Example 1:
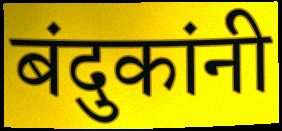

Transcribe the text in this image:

बंदुकांनी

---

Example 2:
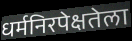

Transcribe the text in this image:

धर्मनिरपेक्षतेला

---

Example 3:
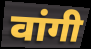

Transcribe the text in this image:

वांगी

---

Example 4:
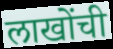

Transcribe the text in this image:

लाखोंची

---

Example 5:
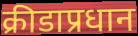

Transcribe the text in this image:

क्रीडाप्रधान